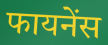
फायनेंस